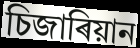
চিজাৰিয়ান